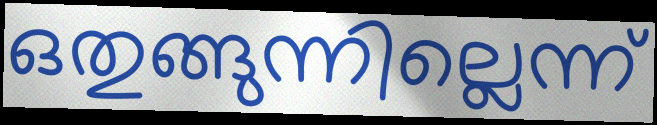
ഒതുങ്ങുന്നില്ലെന്ന്